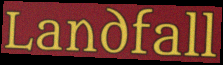
Landfall